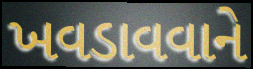
ખવડાવવાને